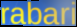
rabari